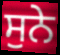
ਸੁਨੇ